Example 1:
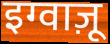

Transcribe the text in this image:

इग्वाज़ू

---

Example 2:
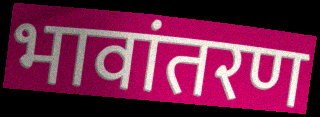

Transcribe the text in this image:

भावांतरण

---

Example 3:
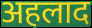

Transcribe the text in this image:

अहलाद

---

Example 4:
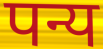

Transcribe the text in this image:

पन्य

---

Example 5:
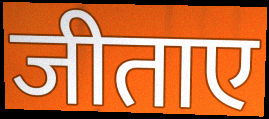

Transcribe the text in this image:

जीताए